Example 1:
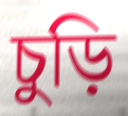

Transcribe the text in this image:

চুড়ি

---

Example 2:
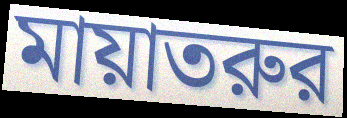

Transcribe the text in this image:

মায়াতরুর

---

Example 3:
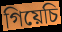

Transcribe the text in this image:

গিয়েচি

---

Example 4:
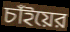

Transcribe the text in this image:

চাঁইয়ের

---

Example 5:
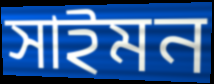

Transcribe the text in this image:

সাইমন